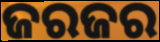
ଜରଜର